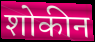
शोकीन